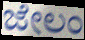
ಜೇಲಂ